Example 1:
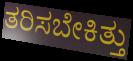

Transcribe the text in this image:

ತರಿಸಬೇಕಿತ್ತು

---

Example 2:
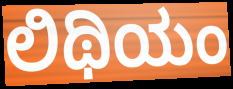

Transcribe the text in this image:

ಲಿಥಿಯಂ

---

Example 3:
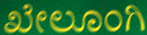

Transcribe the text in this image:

ಖೇಲೂಂಗಿ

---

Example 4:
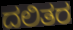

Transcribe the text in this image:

ದಲಿತರ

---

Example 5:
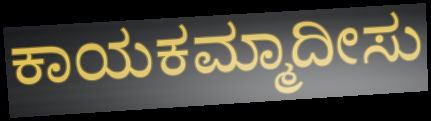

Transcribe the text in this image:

ಕಾಯಕಮ್ಮಾದೀಸು